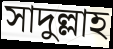
সাদুল্লাহ